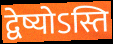
द्वेष्योऽस्ति